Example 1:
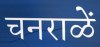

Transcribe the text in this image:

चनराळें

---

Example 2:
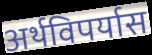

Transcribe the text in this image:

अर्थविपर्यास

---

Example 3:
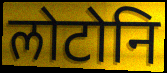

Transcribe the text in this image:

लोटोनि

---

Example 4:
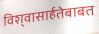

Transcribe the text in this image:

विश्वासार्हतेबाबत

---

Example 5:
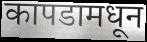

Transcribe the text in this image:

कापडामधून